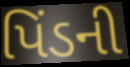
પિંડની